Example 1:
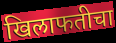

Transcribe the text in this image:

खिलाफतीचा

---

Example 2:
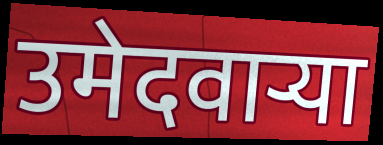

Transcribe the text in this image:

उमेदवाऱ्या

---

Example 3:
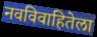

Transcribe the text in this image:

नवविवाहितेला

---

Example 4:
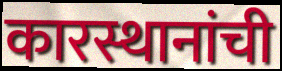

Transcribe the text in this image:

कारस्थानांची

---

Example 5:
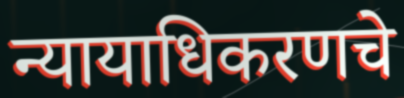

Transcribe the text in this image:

न्यायाधिकरणचे